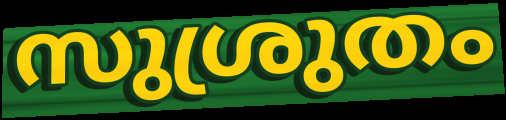
സുശ്രുതം